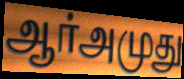
ஆர்அமுது